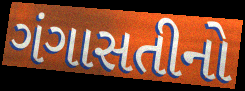
ગંગાસતીનો